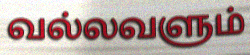
வல்லவளும்